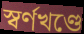
স্বর্ণখণ্ডে